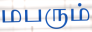
மபரும்